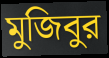
মুজিবুর